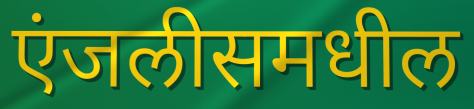
एंजलीसमधील